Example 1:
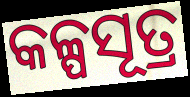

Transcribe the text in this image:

କଳ୍ପସୂତ୍ର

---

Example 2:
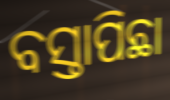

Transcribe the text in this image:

ବସ୍ତାପିଛା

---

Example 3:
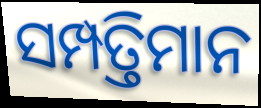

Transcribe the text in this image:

ସମ୍ପତ୍ତିମାନ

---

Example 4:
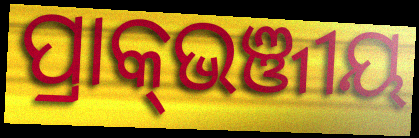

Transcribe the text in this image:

ପ୍ରାକ୍‌ଭଞ୍ଜୀୟ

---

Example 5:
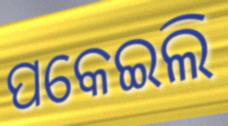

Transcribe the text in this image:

ପକେଇଲି